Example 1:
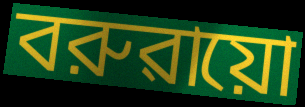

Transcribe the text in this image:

বৰুৱায়ো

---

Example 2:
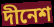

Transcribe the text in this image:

দীনেশ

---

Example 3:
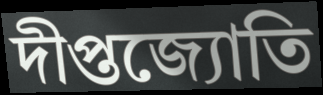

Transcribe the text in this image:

দীপ্তজ্যোতি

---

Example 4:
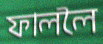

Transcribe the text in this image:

ফাললৈ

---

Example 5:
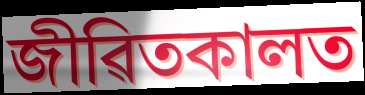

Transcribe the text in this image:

জীৱিতকালত